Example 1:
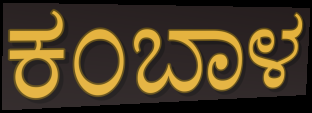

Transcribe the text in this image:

ಕಂಬಾಳ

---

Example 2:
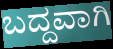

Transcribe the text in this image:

ಬದ್ದವಾಗಿ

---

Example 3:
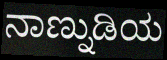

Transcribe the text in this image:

ನಾಣ್ನುಡಿಯ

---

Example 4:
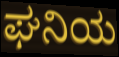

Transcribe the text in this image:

ಘನಿಯ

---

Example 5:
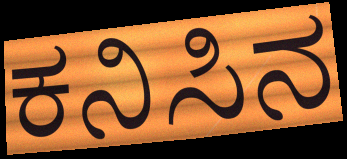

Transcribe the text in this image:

ಕನಿಸಿನ